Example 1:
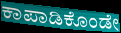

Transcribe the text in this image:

ಕಾಪಾಡಿಕೊಂಡೇ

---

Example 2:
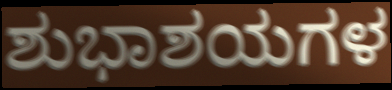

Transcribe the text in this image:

ಶುಭಾಶಯಗಳ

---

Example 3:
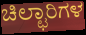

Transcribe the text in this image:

ಚಿಲ್ಟಾರಿಗಳ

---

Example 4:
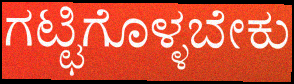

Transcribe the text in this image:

ಗಟ್ಟಿಗೊಳ್ಳಬೇಕು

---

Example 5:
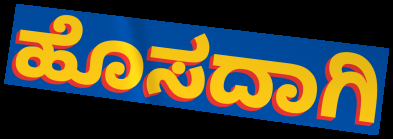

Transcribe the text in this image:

ಹೊಸದಾಗಿ